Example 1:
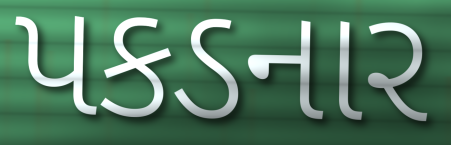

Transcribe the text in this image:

પકડનાર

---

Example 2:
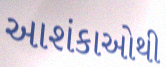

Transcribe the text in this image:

આશંકાઓથી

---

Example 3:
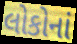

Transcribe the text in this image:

લોકોનાં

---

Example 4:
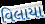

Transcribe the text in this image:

વિલાયા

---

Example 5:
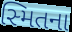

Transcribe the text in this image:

સ્મિતના